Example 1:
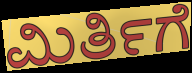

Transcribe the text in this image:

ಮಿರ್ತಿಗೆ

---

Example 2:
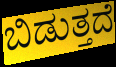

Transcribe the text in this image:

ಬಿಡುತ್ತದೆ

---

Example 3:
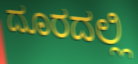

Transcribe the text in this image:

ದೂರದಲ್ಲಿ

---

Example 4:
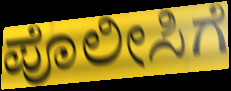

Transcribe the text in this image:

ಪೊಲೀಸಿಗೆ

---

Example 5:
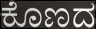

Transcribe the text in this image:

ಕೊಣದ